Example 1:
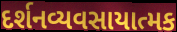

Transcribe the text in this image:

દર્શનવ્યવસાયાત્મક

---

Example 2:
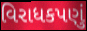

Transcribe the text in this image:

વિરાધકપણું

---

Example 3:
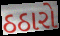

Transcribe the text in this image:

ઠઠારો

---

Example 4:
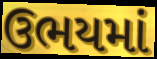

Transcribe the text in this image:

ઉભયમાં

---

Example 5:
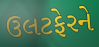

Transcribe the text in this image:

ઉલટફેરને